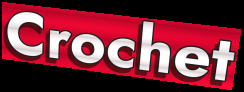
Crochet